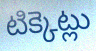
టిక్కెట్లు